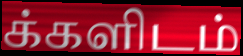
க்களிடம்